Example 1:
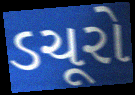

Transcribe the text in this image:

ડચૂરો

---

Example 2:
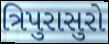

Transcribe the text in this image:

ત્રિપુરાસુરો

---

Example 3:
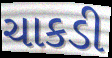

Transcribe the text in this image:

ચાકડી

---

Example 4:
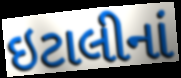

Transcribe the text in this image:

ઇટાલીનાં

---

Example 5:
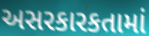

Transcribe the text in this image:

અસરકારકતામાં